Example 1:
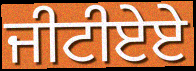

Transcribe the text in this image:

ਜੀਟੀਏਏ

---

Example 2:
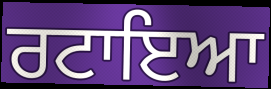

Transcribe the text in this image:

ਰਟਾਇਆ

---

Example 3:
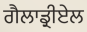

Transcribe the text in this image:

ਗੈਲਾਡ੍ਰੀਏਲ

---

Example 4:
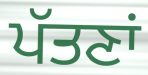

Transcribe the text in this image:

ਪੱਤਣਾਂ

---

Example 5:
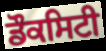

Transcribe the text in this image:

ਡੌਕਸਿਟੀ